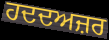
ਹਦਦਅਜ਼ਰ